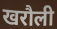
खरौली